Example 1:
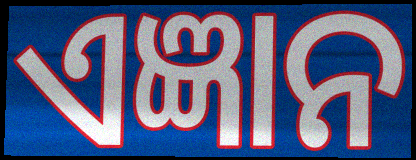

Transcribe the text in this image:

ଏଜ୍ଞାନ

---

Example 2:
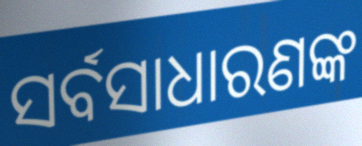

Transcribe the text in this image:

ସର୍ବସାଧାରଣଙ୍କ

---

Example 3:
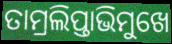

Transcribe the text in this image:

ତାମ୍ରଲିପ୍ତାଭିମୁଖେ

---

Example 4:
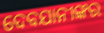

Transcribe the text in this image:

ଦେବଯାନୀଙ୍କର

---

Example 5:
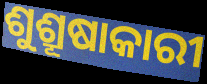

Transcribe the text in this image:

ଶୁଶ୍ରୂଷାକାରୀ